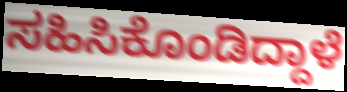
ಸಹಿಸಿಕೊಂಡಿದ್ದಾಳೆ